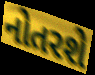
નોતરશે